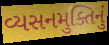
વ્યસનમુક્તિનું